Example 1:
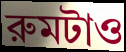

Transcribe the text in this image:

রুমটাও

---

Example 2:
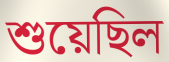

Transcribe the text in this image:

শুয়েছিল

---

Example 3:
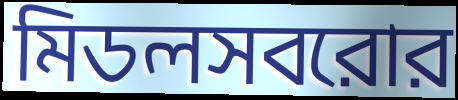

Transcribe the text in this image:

মিডলসবরোর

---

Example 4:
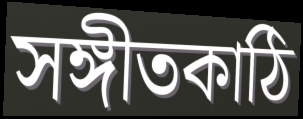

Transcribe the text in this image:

সঙ্গীতকাঠি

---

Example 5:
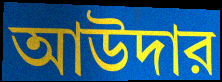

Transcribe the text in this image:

আউদার